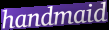
handmaid